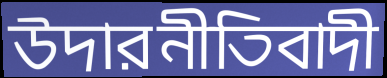
উদারনীতিবাদী